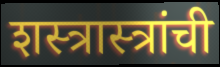
शस्त्रास्त्रांची